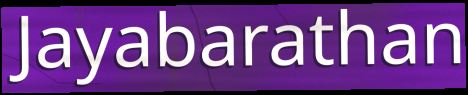
Jayabarathan